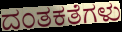
ದಂತಕತೆಗಳು